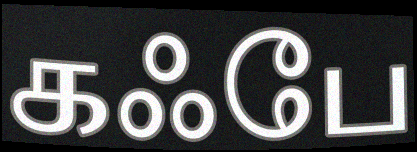
கஃபே